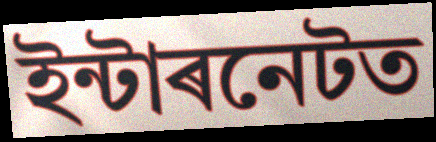
ইন্টাৰনেটত